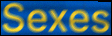
Sexes